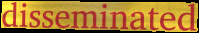
disseminated